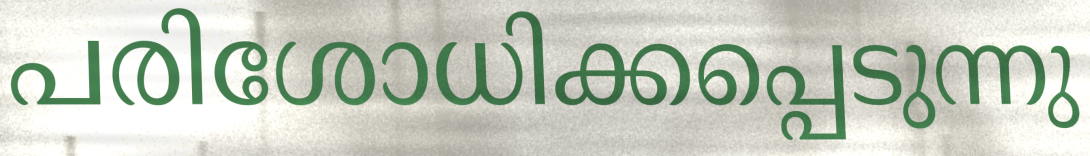
പരിശോധിക്കപ്പെടുന്നു